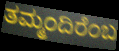
ತಮ್ಮಂದಿರೆಂಬ